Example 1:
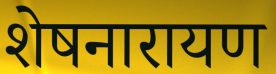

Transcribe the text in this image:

शेषनारायण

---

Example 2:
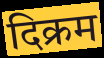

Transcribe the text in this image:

दिक्रम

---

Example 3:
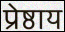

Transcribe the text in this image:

प्रेष्ठाय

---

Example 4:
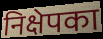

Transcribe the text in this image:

निक्षेपका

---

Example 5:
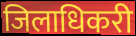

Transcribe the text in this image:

जिलाधिकरी